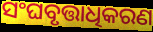
ସଂଘବୃତ୍ତାଧିକରଣ